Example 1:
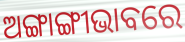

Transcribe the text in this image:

ଅଙ୍ଗାଙ୍ଗୀଭାବରେ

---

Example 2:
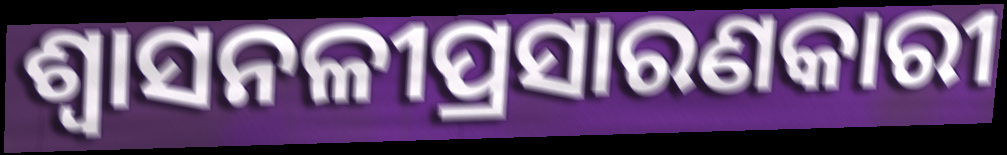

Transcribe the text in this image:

ଶ୍ୱାସନଳୀପ୍ରସାରଣକାରୀ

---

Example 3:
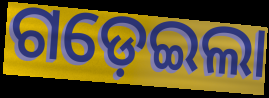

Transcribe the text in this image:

ଗଡ଼େଇଲା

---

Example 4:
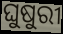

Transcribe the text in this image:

ଘୁଷୁରୀ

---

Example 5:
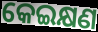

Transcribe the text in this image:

କେଇକ୍ଷଣ